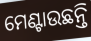
ମେଣ୍ଟାଉଛନ୍ତି